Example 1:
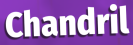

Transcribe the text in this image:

Chandril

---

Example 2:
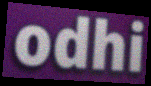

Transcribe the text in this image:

odhi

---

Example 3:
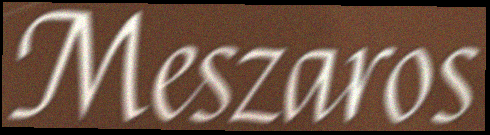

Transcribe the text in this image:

Meszaros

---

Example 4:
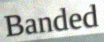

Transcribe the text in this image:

Banded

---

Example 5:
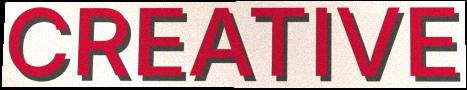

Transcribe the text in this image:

CREATIVE